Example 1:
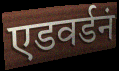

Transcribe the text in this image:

एडवर्डनं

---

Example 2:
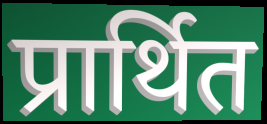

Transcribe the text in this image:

प्रार्थित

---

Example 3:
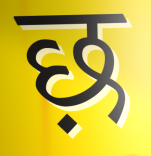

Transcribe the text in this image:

छ़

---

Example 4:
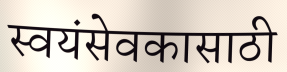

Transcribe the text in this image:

स्वयंसेवकासाठी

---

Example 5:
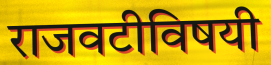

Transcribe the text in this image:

राजवटीविषयी